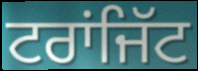
ਟਰਾਂਜਿੱਟ